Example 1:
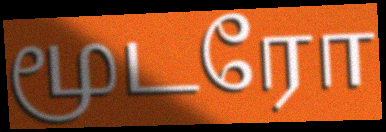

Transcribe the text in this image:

மூடரோ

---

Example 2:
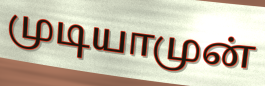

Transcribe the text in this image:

முடியாமுன்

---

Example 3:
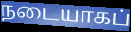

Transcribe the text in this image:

நடையாகப்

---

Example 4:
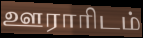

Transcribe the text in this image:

ஊராரிடம்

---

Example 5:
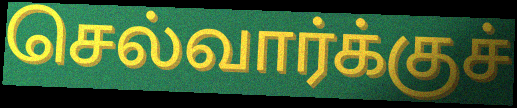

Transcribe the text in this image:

செல்வார்க்குச்